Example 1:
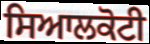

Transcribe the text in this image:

ਸਿਆਲਕੋਟੀ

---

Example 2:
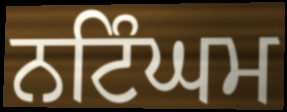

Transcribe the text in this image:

ਨਟਿੰਘਮ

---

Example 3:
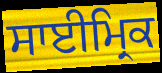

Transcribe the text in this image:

ਸਾਈਮ੍ਰਿਕ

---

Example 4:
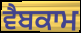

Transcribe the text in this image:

ਵੈਬਕਾਮ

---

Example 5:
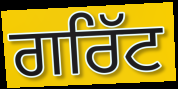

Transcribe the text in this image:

ਗਰਿੱਟ